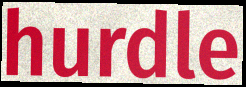
hurdle